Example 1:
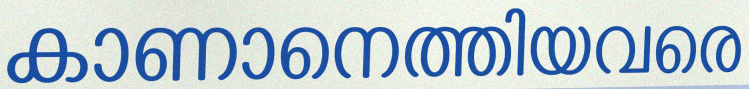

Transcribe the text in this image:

കാണാനെത്തിയവരെ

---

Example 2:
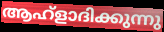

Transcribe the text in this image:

ആഹ്ളാദിക്കുന്നു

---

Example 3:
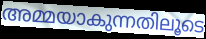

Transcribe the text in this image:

അമ്മയാകുന്നതിലൂടെ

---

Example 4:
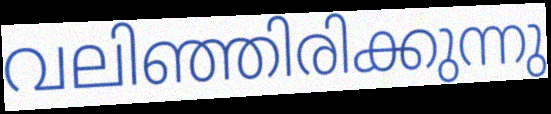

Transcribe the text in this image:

വലിഞ്ഞിരിക്കുന്നു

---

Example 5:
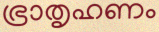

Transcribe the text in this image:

ഭ്രാതൃഹണം